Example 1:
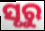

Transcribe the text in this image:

ସୃରୁ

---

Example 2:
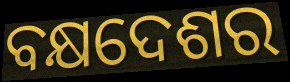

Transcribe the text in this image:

ବକ୍ଷଦେଶର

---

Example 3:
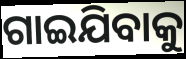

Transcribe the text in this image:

ଗାଇଯିବାକୁ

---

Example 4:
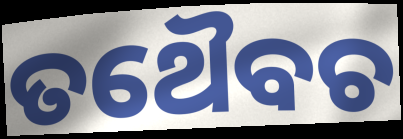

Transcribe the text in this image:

ତଥୈବଚ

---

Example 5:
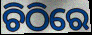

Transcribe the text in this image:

ଚିଠିରେ